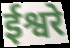
ईश्वरे